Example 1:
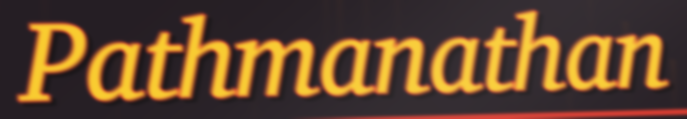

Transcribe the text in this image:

Pathmanathan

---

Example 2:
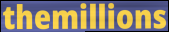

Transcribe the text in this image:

themillions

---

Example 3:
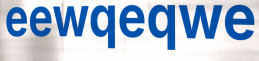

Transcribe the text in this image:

eewqeqwe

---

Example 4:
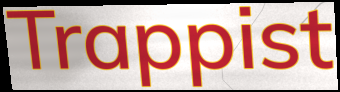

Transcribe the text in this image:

Trappist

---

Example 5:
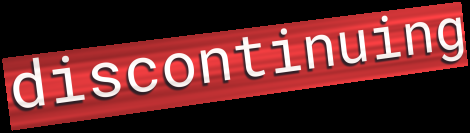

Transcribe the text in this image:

discontinuing